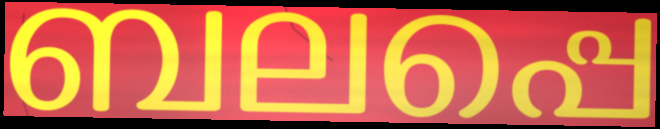
ബലപ്പെ